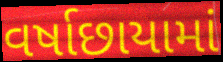
વર્ષાછાયામાં